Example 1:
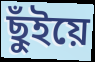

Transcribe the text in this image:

ছুঁইয়ে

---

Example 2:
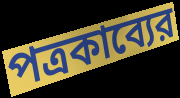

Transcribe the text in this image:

পত্রকাব্যের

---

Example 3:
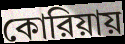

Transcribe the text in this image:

কোরিয়ায়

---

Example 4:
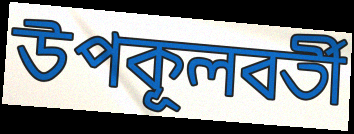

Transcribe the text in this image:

উপকূলবর্তী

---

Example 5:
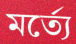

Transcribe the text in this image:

মর্ত্যে